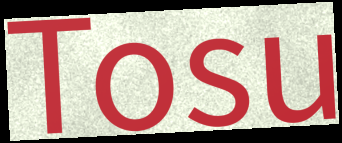
Tosu